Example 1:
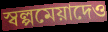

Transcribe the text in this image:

স্বল্পমেয়াদেও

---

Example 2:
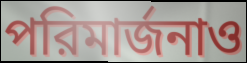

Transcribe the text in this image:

পরিমার্জনাও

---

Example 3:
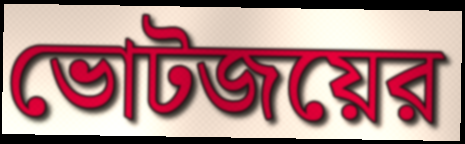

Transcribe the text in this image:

ভোটজয়ের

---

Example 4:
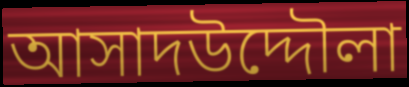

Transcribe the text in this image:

আসাদউদ্দৌলা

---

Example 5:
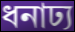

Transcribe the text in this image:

ধনাঢ্য